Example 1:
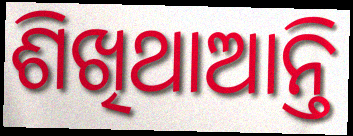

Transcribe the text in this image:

ଶିଖିଥାଆନ୍ତି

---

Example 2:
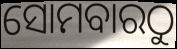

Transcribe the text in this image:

ସୋମବାରଠୁ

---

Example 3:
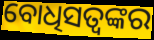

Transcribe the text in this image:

ବୋଧିସତ୍ୱଙ୍କର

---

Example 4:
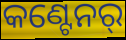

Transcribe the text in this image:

କଣ୍ଟେନର୍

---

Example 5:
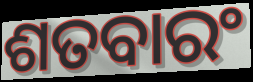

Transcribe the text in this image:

ଶତବାରଂ